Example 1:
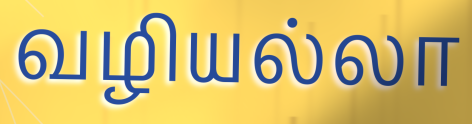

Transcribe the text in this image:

வழியல்லா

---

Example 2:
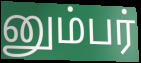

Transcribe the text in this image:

னும்பர்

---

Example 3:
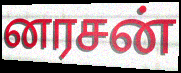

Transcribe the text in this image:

னரசன்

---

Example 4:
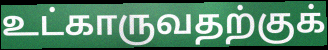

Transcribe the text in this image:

உட்காருவதற்குக்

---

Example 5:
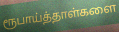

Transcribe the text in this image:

ரூபாய்த்தாள்களை